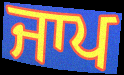
ਜਾਪ